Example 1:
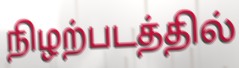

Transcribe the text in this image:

நிழற்படத்தில்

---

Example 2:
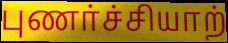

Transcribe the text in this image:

புணர்ச்சியாற்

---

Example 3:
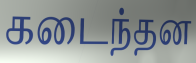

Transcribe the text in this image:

கடைந்தன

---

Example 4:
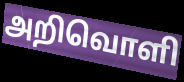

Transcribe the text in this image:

அறிவொளி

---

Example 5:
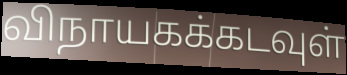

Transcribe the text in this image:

விநாயகக்கடவுள்